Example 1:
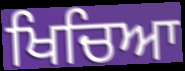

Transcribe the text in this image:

ਖਿਚਿਆ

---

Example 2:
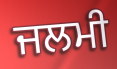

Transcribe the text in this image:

ਜਲਮੀ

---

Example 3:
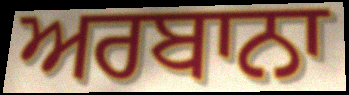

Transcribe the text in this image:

ਅਰਬਾਨਾ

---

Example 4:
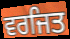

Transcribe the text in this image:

ਵਰਜਿਤ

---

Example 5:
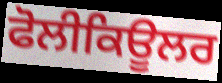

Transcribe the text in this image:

ਫੋਲੀਕਿਊਲਰ